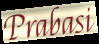
Prabasi